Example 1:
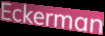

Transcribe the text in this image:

Eckerman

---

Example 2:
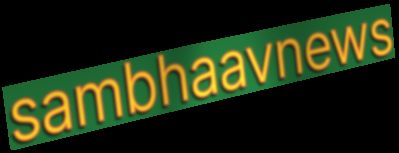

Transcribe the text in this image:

sambhaavnews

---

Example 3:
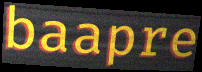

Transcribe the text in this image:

baapre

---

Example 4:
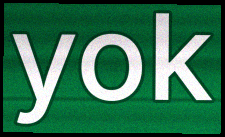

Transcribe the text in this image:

yok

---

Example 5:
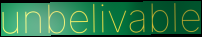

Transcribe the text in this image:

unbelivable